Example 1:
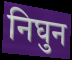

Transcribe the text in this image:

निघुन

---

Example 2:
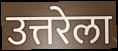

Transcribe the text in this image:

उत्तरेला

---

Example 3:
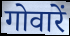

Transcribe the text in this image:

गोवारें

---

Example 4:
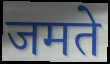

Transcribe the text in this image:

जमते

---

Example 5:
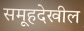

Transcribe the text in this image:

समूहदेखील